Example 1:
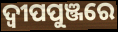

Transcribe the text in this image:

ଦ୍ୱୀପପୁଞ୍ଜରେ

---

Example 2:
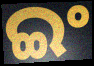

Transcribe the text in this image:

ଇଂ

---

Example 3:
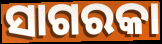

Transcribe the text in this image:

ସାଗରକା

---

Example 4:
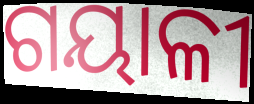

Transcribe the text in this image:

ଗୟାଳୀ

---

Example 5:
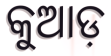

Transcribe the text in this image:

କୁଆଡ଼